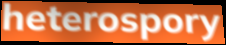
heterospory